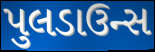
પુલડાઉન્સ